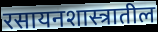
रसायनशास्त्रातील